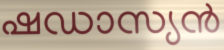
ഷഡാസ്യൻ